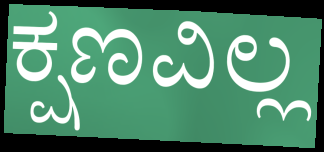
ಕ್ಷಣವಿಲ್ಲ